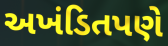
અખંડિતપણે